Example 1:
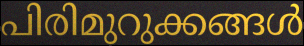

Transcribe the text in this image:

പിരിമുറുക്കങ്ങൾ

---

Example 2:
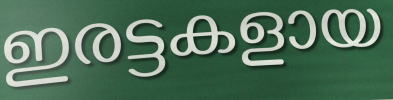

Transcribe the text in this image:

ഇരട്ടകളായ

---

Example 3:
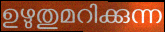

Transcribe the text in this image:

ഉഴുതുമറിക്കുന്ന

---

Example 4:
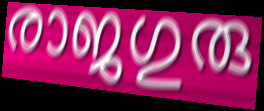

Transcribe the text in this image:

രാജഗുരു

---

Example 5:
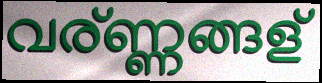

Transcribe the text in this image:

വര്ണ്ണങ്ങള്